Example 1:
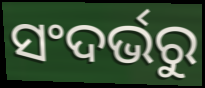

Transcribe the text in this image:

ସଂଦର୍ଭରୁ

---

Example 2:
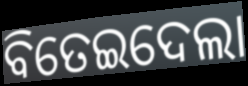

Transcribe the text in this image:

ବିତେଇଦେଲା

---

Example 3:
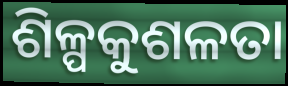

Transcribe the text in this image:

ଶିଳ୍ପକୁଶଳତା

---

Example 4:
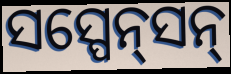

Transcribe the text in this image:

ସସ୍ପେନ୍‌ସନ୍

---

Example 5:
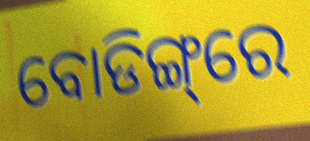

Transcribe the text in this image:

ବୋଡିଙ୍ଗ୍‌ରେ